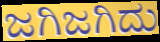
ಜಗಿಜಗಿದು